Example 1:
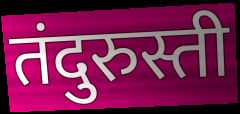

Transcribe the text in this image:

तंदुरुस्ती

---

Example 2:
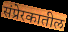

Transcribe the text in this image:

संप्रेरकातील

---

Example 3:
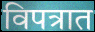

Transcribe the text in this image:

विपत्रात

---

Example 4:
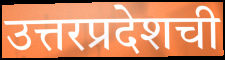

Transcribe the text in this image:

उत्तरप्रदेशची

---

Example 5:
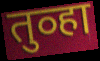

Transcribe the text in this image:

तुव्हा